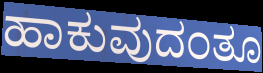
ಹಾಕುವುದಂತೂ